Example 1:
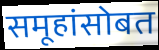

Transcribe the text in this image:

समूहांसोबत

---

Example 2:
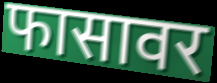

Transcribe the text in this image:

फासावर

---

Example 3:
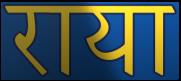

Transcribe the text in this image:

राया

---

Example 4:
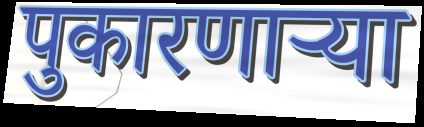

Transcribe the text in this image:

पुकारणार्‍या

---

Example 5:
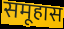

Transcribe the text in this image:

समूहास